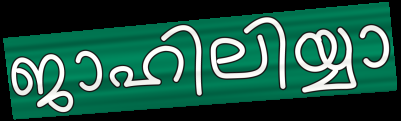
ജാഹിലിയ്യാ